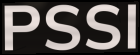
PSSI